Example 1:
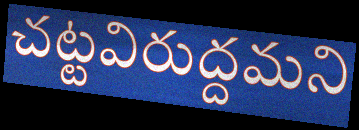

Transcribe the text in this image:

చట్టవిరుద్దమని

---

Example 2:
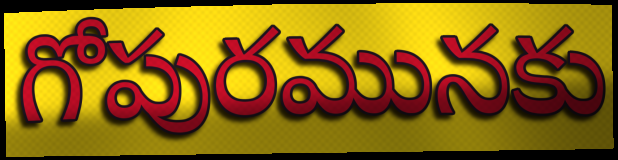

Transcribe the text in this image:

గోపురమునకు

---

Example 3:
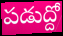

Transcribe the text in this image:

పడుద్దో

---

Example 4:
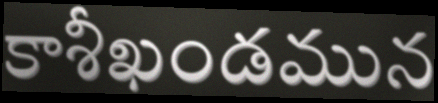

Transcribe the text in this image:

కాశీఖండమున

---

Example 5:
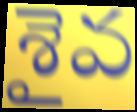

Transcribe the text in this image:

శైవ